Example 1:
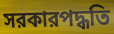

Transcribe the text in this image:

সরকারপদ্ধতি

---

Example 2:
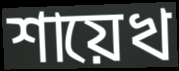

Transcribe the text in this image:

শায়েখ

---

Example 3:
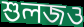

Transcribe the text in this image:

শুলজও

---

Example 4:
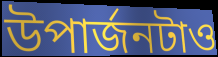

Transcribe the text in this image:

উপার্জনটাও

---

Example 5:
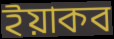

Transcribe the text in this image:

ইয়াকব